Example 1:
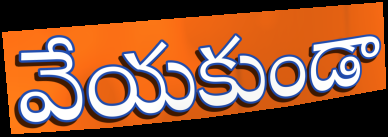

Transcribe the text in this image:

వేయకుండా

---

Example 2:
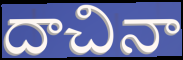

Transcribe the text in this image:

దాచినా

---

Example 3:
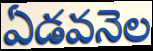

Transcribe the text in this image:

ఏడవనెల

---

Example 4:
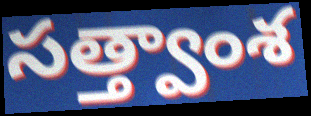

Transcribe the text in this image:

సత్త్వాంశ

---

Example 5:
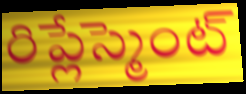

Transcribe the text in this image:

రిప్లేస్మెంట్